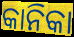
କାନିକା